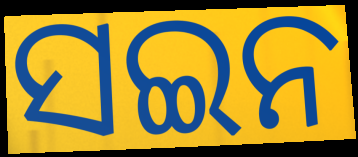
ସଇନ